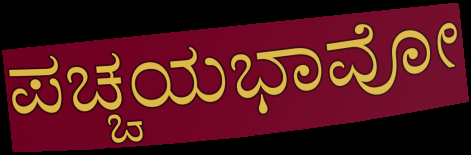
ಪಚ್ಚಯಭಾವೋ